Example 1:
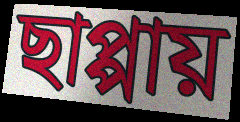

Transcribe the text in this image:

ছাপ্পায়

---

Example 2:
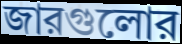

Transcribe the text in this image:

জারগুলোর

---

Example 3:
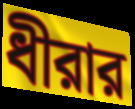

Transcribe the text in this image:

ধীরার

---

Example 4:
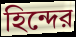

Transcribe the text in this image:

হিন্দের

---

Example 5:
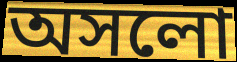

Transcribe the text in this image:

অসলো